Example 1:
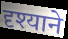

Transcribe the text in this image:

दृश्याने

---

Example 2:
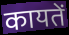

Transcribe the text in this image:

कायतें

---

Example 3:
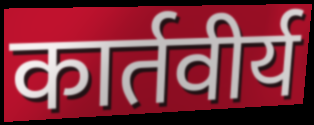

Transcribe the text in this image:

कार्तवीर्य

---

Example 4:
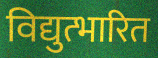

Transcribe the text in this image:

विद्युत्भारित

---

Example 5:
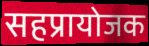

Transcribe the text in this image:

सहप्रायोजक